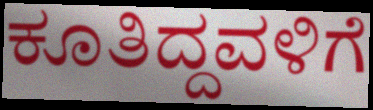
ಕೂತಿದ್ದವಳಿಗೆ